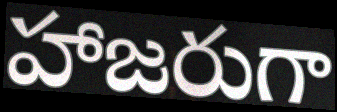
హాజరుగా